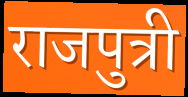
राजपुत्री